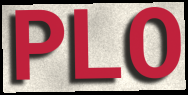
PLO